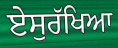
ਏਸੁਰੱਖਿਆ